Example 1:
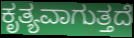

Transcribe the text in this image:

ಕೃತ್ಯವಾಗುತ್ತದೆ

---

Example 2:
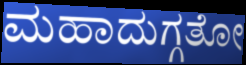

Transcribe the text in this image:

ಮಹಾದುಗ್ಗತೋ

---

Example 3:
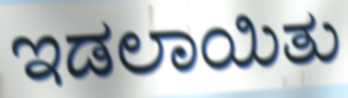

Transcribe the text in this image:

ಇಡಲಾಯಿತು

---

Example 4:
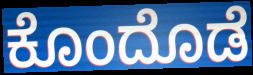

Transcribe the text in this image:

ಕೊಂದೊಡೆ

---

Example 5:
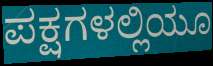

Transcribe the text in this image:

ಪಕ್ಷಗಳಲ್ಲಿಯೂ